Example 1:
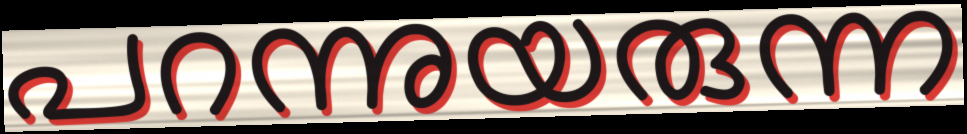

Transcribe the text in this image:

പറന്നുയരുന്ന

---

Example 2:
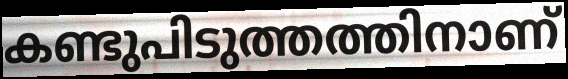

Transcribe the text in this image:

കണ്ടുപിടുത്തത്തിനാണ്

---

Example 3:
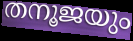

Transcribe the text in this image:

തനൂജയും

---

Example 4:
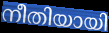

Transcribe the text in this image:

നീതിയായി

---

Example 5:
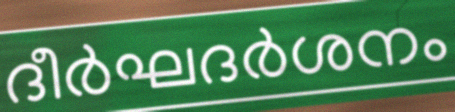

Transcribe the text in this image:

ദീർഘദർശനം